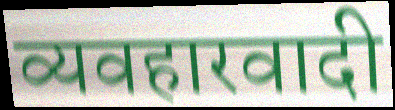
व्यवहारवादी